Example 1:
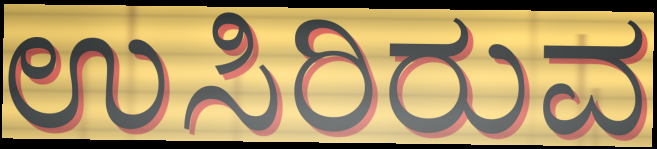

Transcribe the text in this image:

ಉಸಿರಿರುವ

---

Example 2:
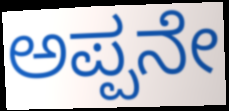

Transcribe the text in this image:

ಅಪ್ಪನೇ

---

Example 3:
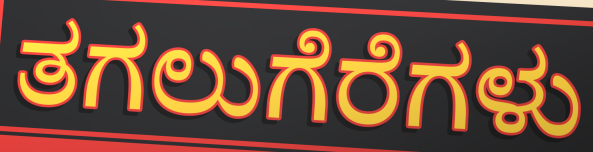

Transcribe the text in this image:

ತಗಲುಗೆರೆಗಳು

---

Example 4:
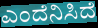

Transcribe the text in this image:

ಎಂದೆನಿಸಿದೆ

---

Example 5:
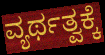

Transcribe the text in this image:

ವ್ಯರ್ಥತ್ವಕ್ಕೆ